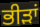
ਭੀੜਾਂ